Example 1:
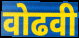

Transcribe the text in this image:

वोढवी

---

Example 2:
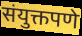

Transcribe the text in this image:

संयुक्तपणे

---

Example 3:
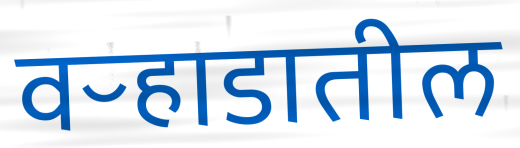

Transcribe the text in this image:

वऱ्हाडातील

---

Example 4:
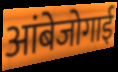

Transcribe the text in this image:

आंबेजोगाई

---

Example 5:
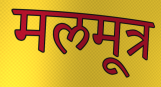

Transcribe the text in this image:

मलमूत्र